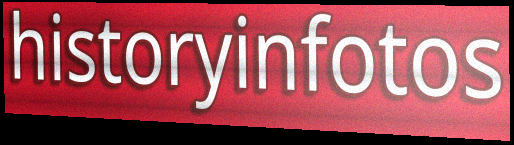
historyinfotos